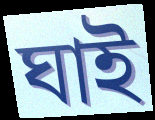
ঘাই